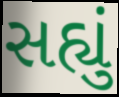
સહ્યું